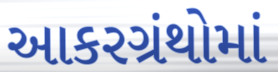
આકરગ્રંથોમાં